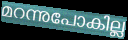
മറന്നുപോകില്ല